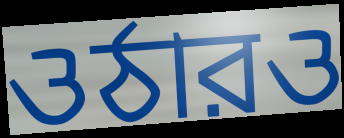
ওঠারও